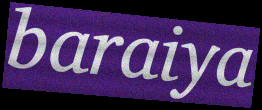
baraiya